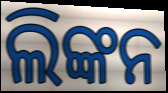
ଲିଙ୍କନ